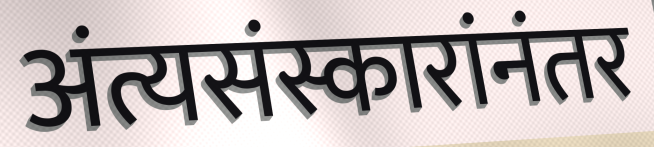
अंत्यसंस्कारांनंतर